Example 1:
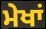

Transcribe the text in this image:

ਮੇਖਾਂ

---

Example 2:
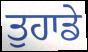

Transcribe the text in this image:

ਤੁਹਾਡੇ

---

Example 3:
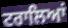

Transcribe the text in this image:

ਟਰਾਲਿਆਂ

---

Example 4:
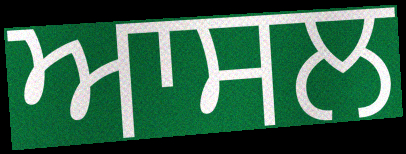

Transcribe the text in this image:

ਆਸਲ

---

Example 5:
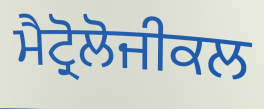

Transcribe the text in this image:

ਮੈਟ੍ਰੋਲੋਜੀਕਲ